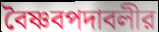
বৈষ্ণবপদাবলীর